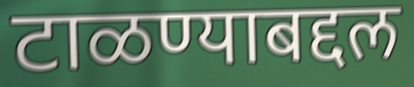
टाळण्याबद्दल